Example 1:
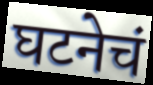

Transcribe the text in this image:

घटनेचं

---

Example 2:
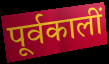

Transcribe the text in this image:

पूर्वकालीं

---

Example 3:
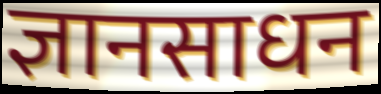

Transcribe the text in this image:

ज्ञानसाधन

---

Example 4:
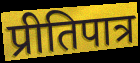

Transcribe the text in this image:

प्रीतिपात्र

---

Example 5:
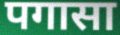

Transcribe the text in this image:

पगासा